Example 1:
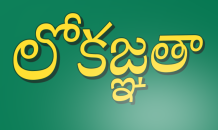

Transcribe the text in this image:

లోకజ్ఞతా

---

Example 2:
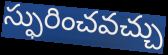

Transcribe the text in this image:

స్ఫురించవచ్చు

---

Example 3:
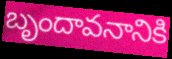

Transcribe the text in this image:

బృందావనానికి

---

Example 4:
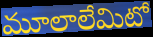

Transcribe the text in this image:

మూలాలేమిటో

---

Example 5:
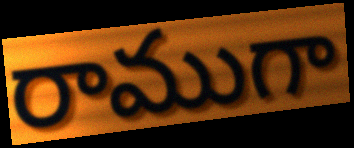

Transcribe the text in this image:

రాముగా